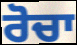
ਰੋਚਾ